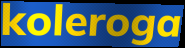
koleroga